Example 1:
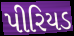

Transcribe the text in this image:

પીરિયડ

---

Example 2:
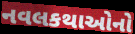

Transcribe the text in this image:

નવલકથાઓનો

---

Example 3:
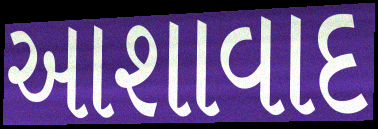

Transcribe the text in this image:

આશાવાદ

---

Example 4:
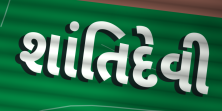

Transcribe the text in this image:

શાંતિદેવી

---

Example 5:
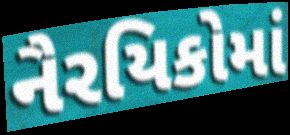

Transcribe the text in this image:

નૈરયિકોમાં